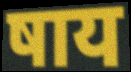
षाय